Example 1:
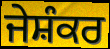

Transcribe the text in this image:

ਜੇਸ਼ੰਕਰ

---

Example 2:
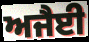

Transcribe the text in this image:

ਅਜੈਈ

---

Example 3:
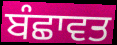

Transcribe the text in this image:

ਬੰਛਾਵਤ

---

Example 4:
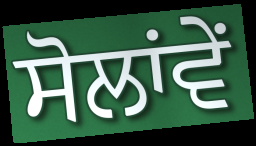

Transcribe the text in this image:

ਸੋਲਾਂਵੇਂ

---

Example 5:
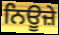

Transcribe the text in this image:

ਨਿਊਜ਼ੇ